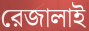
রেজালাই